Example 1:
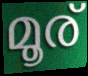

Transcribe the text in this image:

മൂര്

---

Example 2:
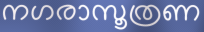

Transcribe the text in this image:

നഗരാസൂത്രണ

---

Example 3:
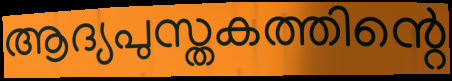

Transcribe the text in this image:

ആദ്യപുസ്തകത്തിന്റെ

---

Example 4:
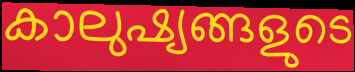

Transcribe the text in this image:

കാലുഷ്യങ്ങളുടെ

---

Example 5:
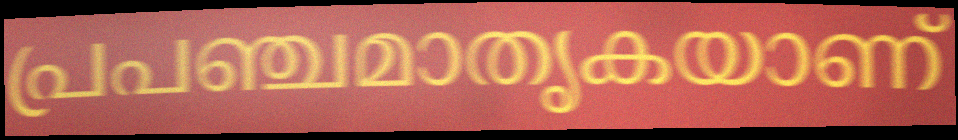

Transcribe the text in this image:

പ്രപഞ്ചമാതൃകയാണ്